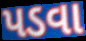
પડવા